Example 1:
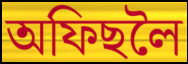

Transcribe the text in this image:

অফিছলৈ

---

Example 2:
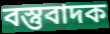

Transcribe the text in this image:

বস্তুবাদক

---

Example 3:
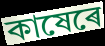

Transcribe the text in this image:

কাষেৰে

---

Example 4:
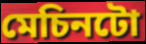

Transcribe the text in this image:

মেচিনটো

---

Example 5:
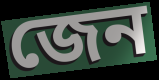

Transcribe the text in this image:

জেন